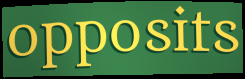
opposits